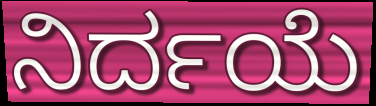
ನಿರ್ದಯೆ